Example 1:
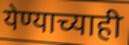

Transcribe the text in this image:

येण्याच्याही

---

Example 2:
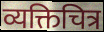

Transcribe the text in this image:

व्यक्तिचित्र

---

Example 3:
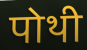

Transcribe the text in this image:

पोथी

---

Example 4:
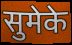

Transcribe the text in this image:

सुमेके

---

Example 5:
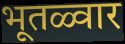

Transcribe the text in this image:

भूतळ्वार